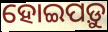
ହୋଇପଡ଼ୁ